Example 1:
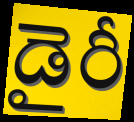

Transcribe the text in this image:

డైరీ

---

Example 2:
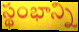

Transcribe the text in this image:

స్థంభాన్ని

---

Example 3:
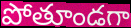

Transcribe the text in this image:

పోతూండగా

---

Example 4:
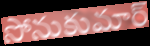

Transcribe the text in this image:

సోనుకుమార్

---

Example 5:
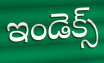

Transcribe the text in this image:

ఇండెక్స్